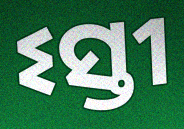
ଽସ୍ତୀ